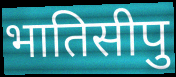
भातिसीपु